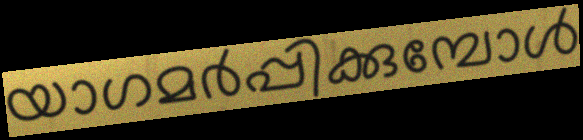
യാഗമർപ്പിക്കുമ്പോൾ